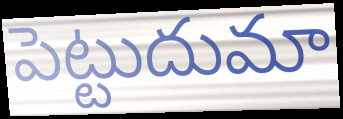
పెట్టుదుమా